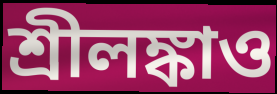
শ্রীলঙ্কাও